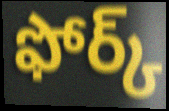
ఫోర్క్